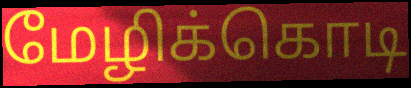
மேழிக்கொடி